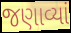
જણાવ્યાં